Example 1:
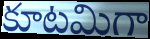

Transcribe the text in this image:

కూటమిగా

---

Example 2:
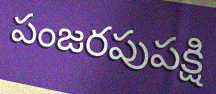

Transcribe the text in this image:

పంజరపుపక్షి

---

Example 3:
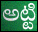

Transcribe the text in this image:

అట్టి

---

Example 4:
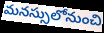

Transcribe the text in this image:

మనస్సులోనుంచి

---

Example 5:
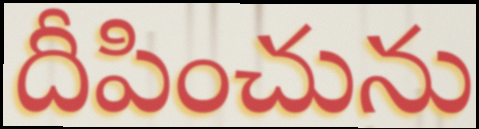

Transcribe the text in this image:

దీపించును